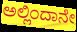
ಅಲ್ಲಿಂದಾನೇ